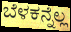
ಬೆಳಕನ್ನೆಲ್ಲ